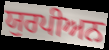
ਯੁਰਪੀਅਨ